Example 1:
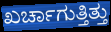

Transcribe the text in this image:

ಖರ್ಚಾಗುತ್ತಿತ್ತು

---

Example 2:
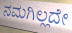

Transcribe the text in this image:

ನಮಗಿಲ್ಲದೇ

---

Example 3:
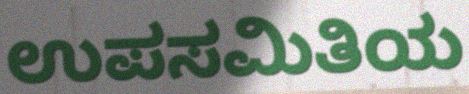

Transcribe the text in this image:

ಉಪಸಮಿತಿಯ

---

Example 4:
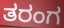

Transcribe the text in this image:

ತರಂಗ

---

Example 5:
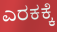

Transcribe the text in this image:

ಎರಕಕ್ಕೆ